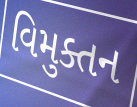
વિમુક્તન